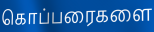
கொப்பரைகளை